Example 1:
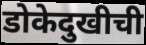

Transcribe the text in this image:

डोकेदुखीची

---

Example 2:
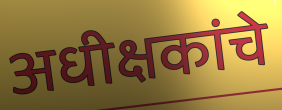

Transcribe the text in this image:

अधीक्षकांचे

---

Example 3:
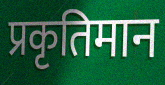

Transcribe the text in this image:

प्रकृतिमान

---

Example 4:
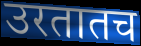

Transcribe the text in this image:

उरतातच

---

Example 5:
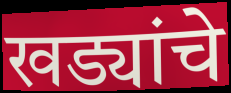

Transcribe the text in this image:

खड्यांचे